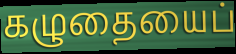
கழுதையைப்